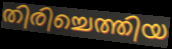
തിരിച്ചെത്തിയ